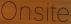
Onsite